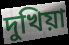
দুখিয়া